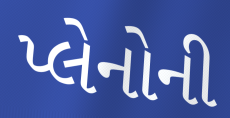
પ્લેનોની